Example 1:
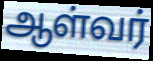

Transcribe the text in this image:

ஆள்வர்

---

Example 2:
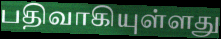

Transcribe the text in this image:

பதிவாகியுள்ளது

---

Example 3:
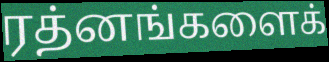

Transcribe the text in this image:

ரத்னங்களைக்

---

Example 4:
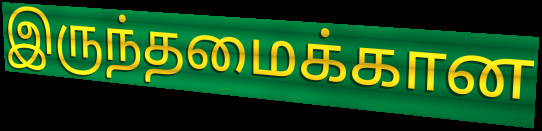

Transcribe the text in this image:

இருந்தமைக்கான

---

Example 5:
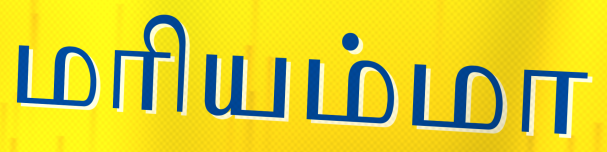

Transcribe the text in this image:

மரியம்மா